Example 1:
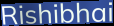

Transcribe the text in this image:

Rishibhai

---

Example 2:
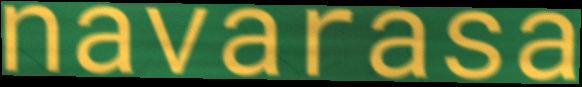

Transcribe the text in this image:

navarasa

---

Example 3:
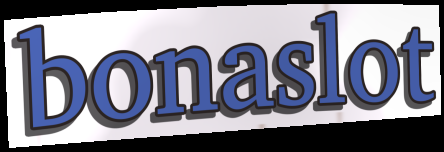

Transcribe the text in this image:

bonaslot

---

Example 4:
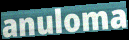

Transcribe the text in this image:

anuloma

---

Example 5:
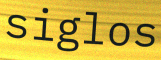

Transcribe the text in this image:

siglos